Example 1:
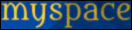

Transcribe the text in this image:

myspace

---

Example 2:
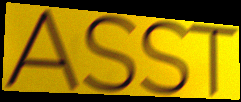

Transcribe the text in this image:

ASST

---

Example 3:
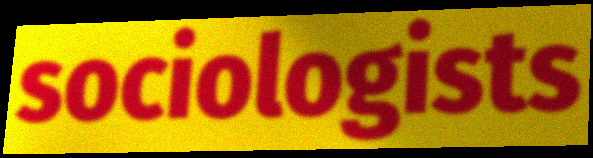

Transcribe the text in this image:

sociologists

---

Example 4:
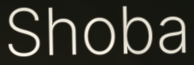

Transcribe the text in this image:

Shoba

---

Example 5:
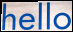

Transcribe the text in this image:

hello